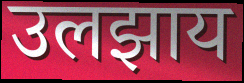
उलझाय